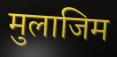
मुलाजिम